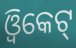
ଓ୍ଵିକେଟ୍